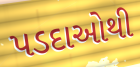
પડદાઓથી